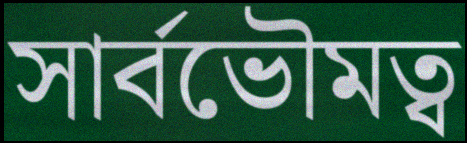
সার্বভৌমত্ব